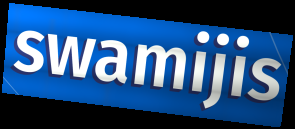
swamijis